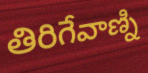
తిరిగేవాణ్ని